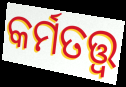
କର୍ମତତ୍ତ୍ୱ